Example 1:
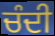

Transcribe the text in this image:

ਚੰਦੀ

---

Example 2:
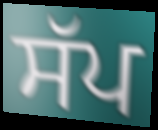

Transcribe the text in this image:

ਸੱਪ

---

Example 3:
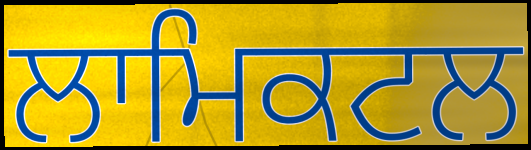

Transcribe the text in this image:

ਲਾਮਿਕਟਲ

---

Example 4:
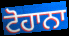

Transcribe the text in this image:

ਟੋਹਾਨਾ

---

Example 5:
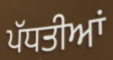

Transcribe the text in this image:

ਪੱਧਤੀਆਂ